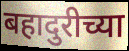
बहादुरीच्या